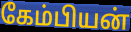
கேம்பியன்